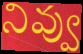
నివ్వు